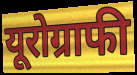
यूरोग्राफी